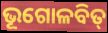
ଭୂଗୋଳବିତ୍